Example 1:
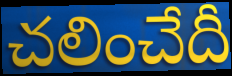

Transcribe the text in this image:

చలించేదీ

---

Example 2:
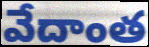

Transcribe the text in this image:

వేదాంత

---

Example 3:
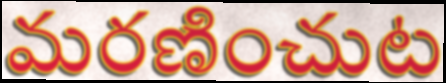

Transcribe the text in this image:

మరణించుట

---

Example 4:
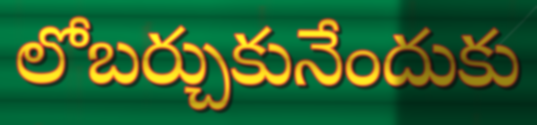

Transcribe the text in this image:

లోబర్చుకునేందుకు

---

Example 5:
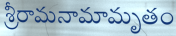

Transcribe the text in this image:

శ్రీరామనామామృతం